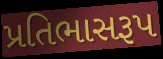
પ્રતિભાસરૂપ